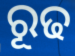
ରୂଢ